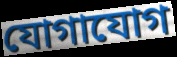
যোগাযোগ